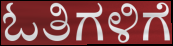
ಓತಿಗಳಿಗೆ